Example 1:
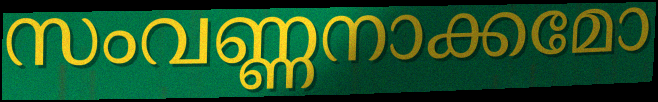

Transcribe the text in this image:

സംവണ്ണനാക്കമോ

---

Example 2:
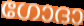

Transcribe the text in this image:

ഗോദാ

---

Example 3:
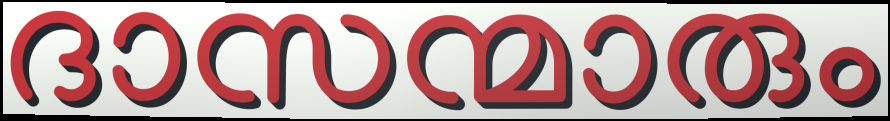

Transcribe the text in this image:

ദാസന്മാരും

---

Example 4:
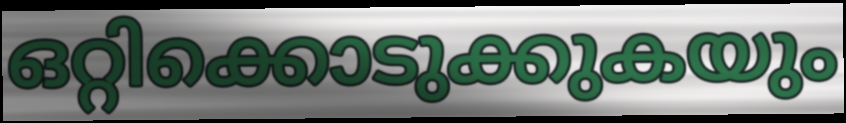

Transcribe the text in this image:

ഒറ്റിക്കൊടുക്കുകയും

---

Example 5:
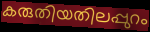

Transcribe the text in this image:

കരുതിയതിലപ്പുറം